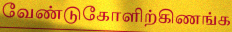
வேண்டுகோளிற்கிணங்க